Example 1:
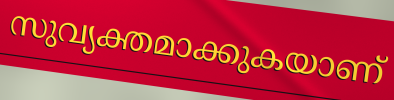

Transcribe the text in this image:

സുവ്യക്തമാക്കുകയാണ്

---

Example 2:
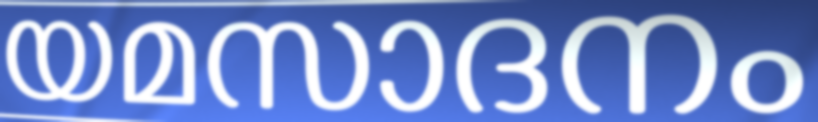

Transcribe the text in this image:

യമസാദനം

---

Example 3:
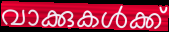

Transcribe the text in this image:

വാക്കുകൾക്ക്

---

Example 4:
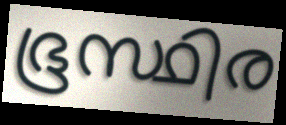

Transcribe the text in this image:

ഭൂസ്ഥിര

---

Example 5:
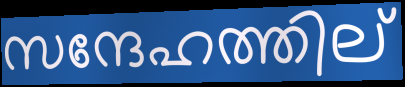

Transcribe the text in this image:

സന്ദേഹത്തില്